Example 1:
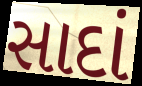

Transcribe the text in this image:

સાદાં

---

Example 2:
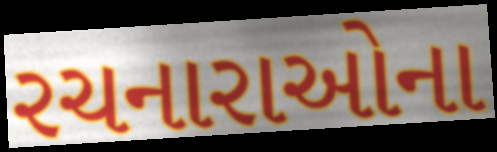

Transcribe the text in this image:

રચનારાઓના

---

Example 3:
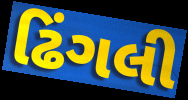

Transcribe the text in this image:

ઢિંગલી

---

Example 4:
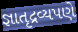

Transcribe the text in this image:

જ્ઞાતૃદ્રવ્યપણે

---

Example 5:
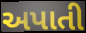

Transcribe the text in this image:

અપાતી